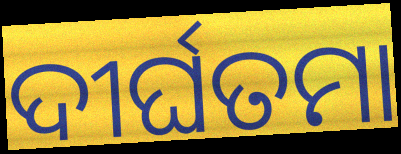
ଦୀର୍ଘତମା